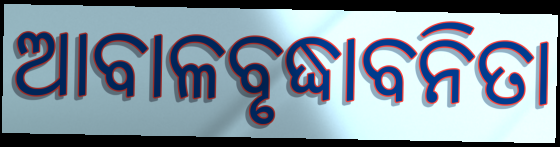
ଆବାଳବୃଦ୍ଧାବନିତା